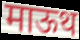
माऊथ